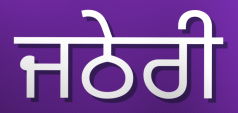
ਜਠੇਰੀ